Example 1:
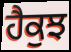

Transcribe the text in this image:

ਹੈਕੁਝ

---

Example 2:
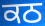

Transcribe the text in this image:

ਕਠ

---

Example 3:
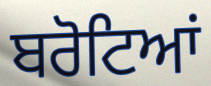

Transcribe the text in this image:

ਬਰੋਟਿਆਂ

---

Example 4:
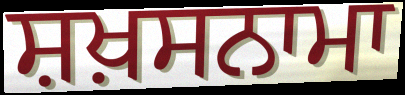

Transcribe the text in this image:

ਸ਼ਖ਼ਸਨਾਮਾ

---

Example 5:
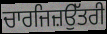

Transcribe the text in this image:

ਚਾਰਜਿਜ਼ਉੱਤਰੀ